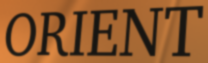
ORIENT